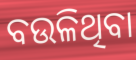
ବଉଳିଥିବା